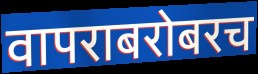
वापराबरोबरच